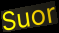
Suor